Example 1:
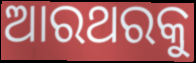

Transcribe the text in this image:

ଆରଥରକୁ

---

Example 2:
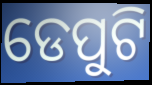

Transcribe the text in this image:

ଡେପୁଟି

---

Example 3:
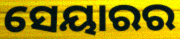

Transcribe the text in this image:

ସେୟାରର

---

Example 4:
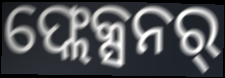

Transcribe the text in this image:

ଫ୍ଲେକ୍ସନର୍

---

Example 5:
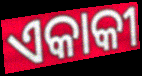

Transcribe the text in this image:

ଏକାକୀ